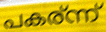
പകര്ന്ന്